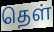
தெள்